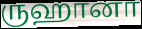
ருஹானா